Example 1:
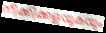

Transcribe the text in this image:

നീക്കിക്കളയുകയും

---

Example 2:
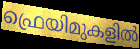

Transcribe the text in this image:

ഫ്രെയിമുകളിൽ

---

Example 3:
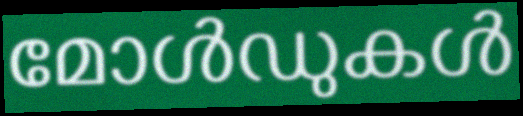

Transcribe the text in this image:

മോൾഡുകൾ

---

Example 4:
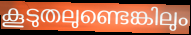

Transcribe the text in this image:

കൂടുതലുണ്ടെങ്കിലും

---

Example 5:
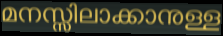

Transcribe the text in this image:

മനസ്സിലാക്കാനുള്ള